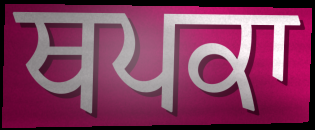
ਥਪਕਾ